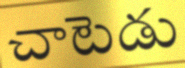
చాటెడు